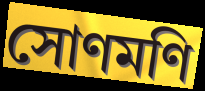
সোণমণি